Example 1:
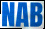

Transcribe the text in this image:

NAB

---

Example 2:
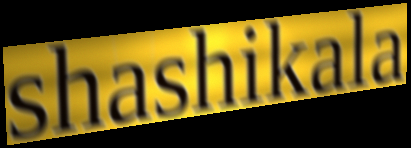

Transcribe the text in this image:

shashikala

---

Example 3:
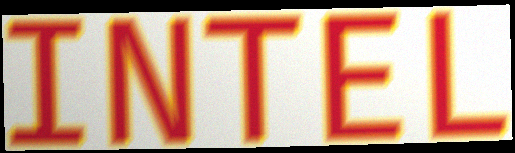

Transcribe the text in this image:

INTEL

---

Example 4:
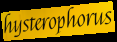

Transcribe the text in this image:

hysterophorus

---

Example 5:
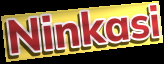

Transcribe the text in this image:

Ninkasi